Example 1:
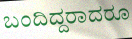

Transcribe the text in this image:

ಬಂದಿದ್ದರಾದರೂ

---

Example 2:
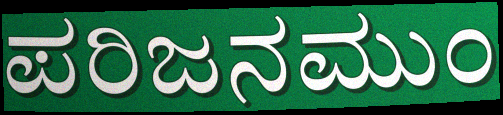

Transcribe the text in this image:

ಪರಿಜನಮುಂ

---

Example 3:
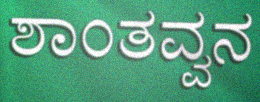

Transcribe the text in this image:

ಶಾಂತವ್ವನ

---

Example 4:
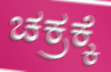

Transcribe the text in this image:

ಚಕ್ರಕ್ಕೆ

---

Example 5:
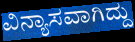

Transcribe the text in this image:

ವಿನ್ಯಾಸವಾಗಿದ್ದು